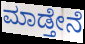
ಮಾಡ್ತೇನೆ